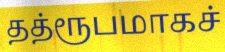
தத்ரூபமாகச்